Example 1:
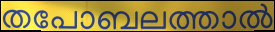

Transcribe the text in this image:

തപോബലത്താൽ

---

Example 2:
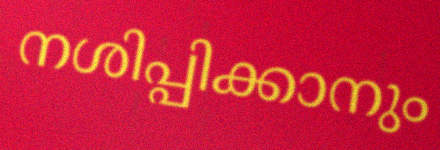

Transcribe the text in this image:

നശിപ്പിക്കാനും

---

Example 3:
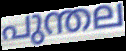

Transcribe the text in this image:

പുന്തല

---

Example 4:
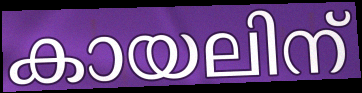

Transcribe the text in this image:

കായലിന്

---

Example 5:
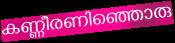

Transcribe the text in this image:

കണ്ണീരണിഞ്ഞൊരു